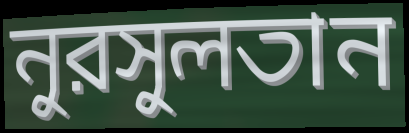
নুরসুলতান